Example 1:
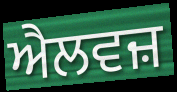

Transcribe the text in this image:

ਐਲਵਜ਼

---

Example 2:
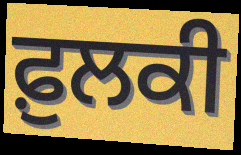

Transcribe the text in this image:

ਫ਼ੁਲਕੀ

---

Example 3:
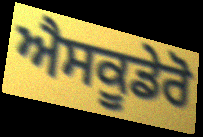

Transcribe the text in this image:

ਐਸਕੂਡੇਰੋ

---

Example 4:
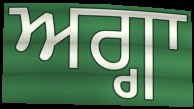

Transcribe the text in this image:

ਅਗ੍ਗਾ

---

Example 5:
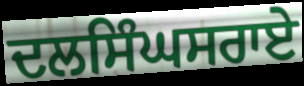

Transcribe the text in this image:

ਦਲਸਿੰਘਸਰਾਏ